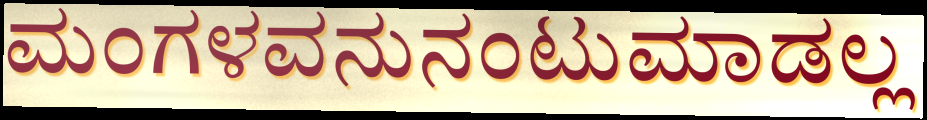
ಮಂಗಳವನುನಂಟುಮಾಡಲ್ಲ